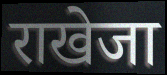
राखेजा